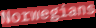
Norwegians